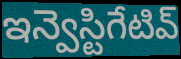
ఇన్వెస్టిగేటివ్